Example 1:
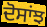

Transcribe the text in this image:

ਦੋਸਾਂਝ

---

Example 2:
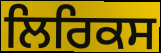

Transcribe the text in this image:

ਲਿਰਿਕਸ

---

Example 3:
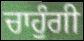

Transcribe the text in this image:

ਚਾਹੁੰਗੀ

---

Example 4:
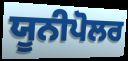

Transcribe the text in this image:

ਯੂਨੀਪੋਲਰ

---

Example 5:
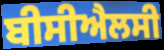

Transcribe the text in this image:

ਬੀਸੀਐਲਸੀ